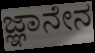
ಜ್ಞಾನೇನ